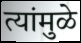
त्यांमुळे